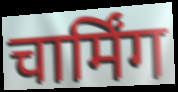
चार्मिंग